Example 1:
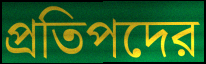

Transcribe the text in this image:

প্রতিপদের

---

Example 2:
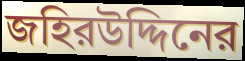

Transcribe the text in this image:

জহিরউদ্দিনের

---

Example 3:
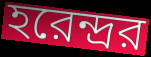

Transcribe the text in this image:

হরেন্দ্রর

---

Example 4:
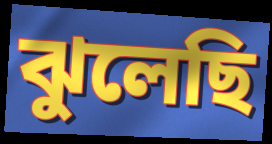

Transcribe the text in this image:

ঝুলেছি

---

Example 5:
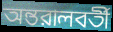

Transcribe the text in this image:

অন্তরালবর্তী